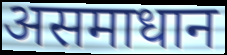
असमाधान